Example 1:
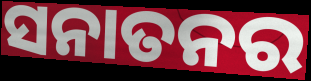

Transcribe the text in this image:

ସନାତନର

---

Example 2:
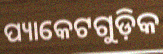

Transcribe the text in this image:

ପ୍ୟାକେଟଗୁଡ଼ିକ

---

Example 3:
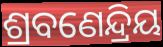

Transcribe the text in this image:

ଶ୍ରବଣେନ୍ଦ୍ରିୟ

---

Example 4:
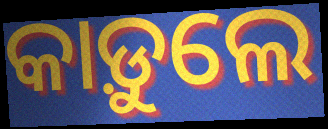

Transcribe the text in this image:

କାଡ଼ୁଲେ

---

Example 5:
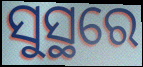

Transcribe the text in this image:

ସୁସ୍ଥରେ